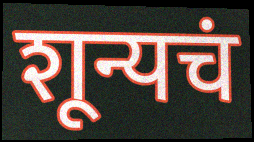
शून्यचं